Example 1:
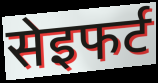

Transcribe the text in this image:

सेइफर्ट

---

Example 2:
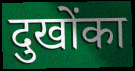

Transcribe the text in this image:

दुखोंका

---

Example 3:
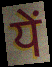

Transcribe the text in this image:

यें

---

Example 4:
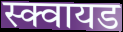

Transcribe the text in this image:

स्क्वायड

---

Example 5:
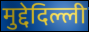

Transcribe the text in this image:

मुद्देदिल्ली